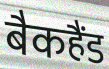
बैकहैंड